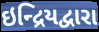
ઇન્દ્રિયદ્વારા